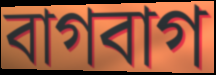
বাগবাগ